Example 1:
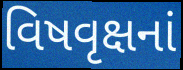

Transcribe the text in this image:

વિષવૃક્ષનાં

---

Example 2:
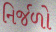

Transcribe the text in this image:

નિર્જળો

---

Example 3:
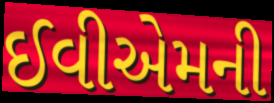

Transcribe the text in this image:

ઈવીએમની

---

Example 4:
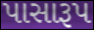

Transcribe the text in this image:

પાસારૂપ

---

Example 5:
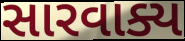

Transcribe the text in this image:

સારવાક્ય